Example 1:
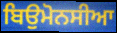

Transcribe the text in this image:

ਬਿਉਮੋਨਸੀਆ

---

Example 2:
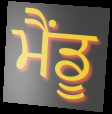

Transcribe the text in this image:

ਮੈਂਡੂ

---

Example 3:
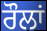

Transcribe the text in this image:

ਰੌਲਾਂ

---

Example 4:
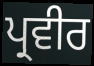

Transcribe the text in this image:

ਪ੍ਰਵੀਰ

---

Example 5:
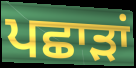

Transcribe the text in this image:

ਪਛਾੜਾਂ